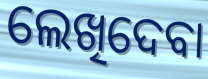
ଲେଖିଦେବା